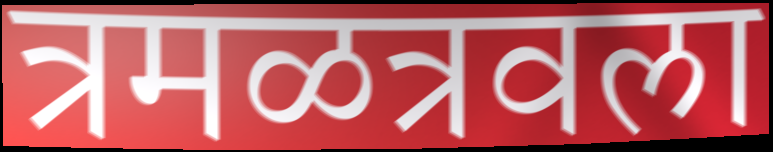
त्रमळत्रवला